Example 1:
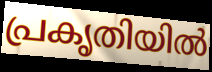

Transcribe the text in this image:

പ്രകൃതിയിൽ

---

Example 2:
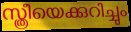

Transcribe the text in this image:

സ്ത്രീയെക്കുറിച്ചും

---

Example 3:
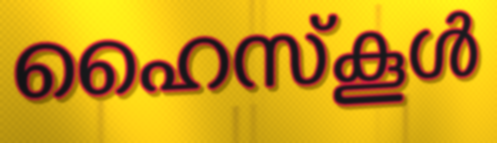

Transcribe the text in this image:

ഹൈസ്‌കൂൾ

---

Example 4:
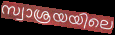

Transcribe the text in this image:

സ്വാശ്രയയിലെ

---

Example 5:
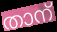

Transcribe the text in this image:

താന്